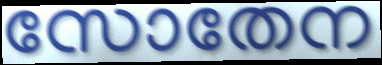
സോതേന